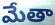
మేతా